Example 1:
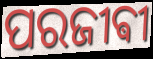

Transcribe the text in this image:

ପରଜୀଵୀ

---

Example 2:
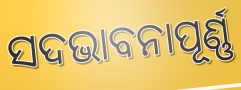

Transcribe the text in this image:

ସଦଭାବନାପୂର୍ଣ୍ଣ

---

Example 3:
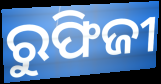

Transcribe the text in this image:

ରୁଫିଜୀ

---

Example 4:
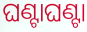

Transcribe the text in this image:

ଘଣ୍ଟାଘଣ୍ଟା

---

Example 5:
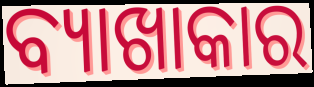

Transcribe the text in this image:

ବ୍ୟାଖାକାର